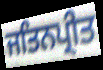
ਜਤਿਨਪ੍ਰੀਤ